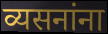
व्यसनांना